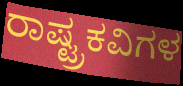
ರಾಷ್ಟ್ರಕವಿಗಳ